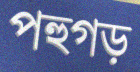
পহুগড়